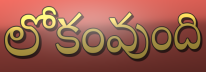
లోకంవుంది